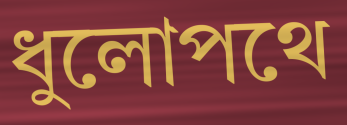
ধুলোপথে